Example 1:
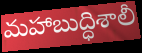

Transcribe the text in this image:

మహాబుద్ధిశాలీ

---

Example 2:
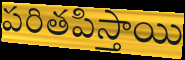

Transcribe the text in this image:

పరితపిస్తాయి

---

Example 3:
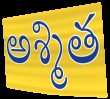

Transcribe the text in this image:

అశ్మిత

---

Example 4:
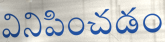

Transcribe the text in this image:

వినిపించడం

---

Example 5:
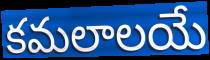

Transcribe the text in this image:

కమలాలయే